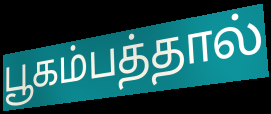
பூகம்பத்தால்